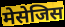
मेसेजिस